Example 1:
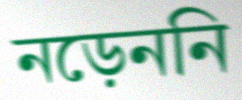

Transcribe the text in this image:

নড়েননি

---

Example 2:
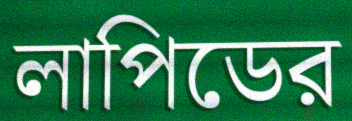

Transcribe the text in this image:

লাপিডের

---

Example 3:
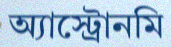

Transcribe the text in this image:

অ্যাস্ট্রোনমি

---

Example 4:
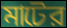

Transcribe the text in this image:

মাটের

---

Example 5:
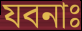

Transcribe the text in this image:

যবনাঃ